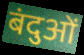
बंदुओं